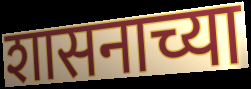
शासनाच्या